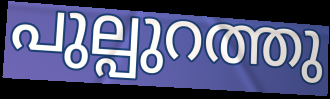
പുല്പുറത്തു